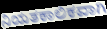
ನಿಯತಕಾಲಿಕವಾಗಿ